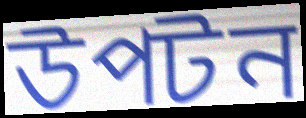
উপটন